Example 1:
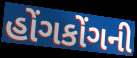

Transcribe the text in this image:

હોંગકોંગની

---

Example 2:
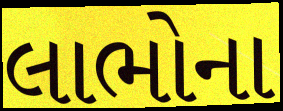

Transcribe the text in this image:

લાભોના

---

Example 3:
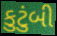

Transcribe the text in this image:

કુટુંબી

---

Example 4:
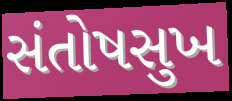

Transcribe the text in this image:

સંતોષસુખ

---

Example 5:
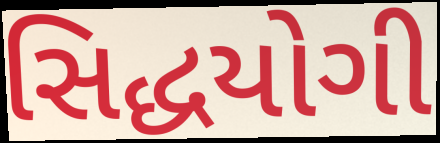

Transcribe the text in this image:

સિદ્ધયોગી